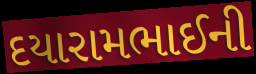
દયારામભાઈની